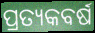
ପ୍ରତ୍ୟକବର୍ଷ